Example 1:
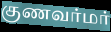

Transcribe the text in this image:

குணவர்மர்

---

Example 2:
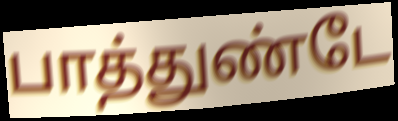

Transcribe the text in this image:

பாத்துண்டே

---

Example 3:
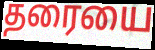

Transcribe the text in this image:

தரையை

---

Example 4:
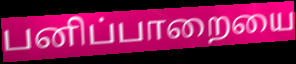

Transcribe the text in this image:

பனிப்பாறையை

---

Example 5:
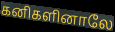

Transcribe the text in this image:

கனிகளினாலே